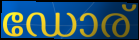
ഡോര്